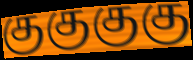
குகுகுகு